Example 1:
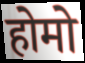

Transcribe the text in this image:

होमो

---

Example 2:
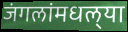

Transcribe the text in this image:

जंगलांमधल्या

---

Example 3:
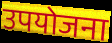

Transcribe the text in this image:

उपयोजना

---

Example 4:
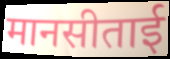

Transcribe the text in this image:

मानसीताई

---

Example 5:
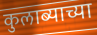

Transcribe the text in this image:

कुलाब्याच्या